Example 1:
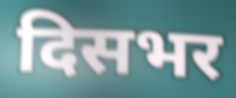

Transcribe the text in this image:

दिसभर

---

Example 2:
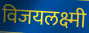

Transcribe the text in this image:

विजयलक्ष्मी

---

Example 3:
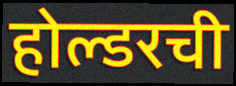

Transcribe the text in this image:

होल्डरची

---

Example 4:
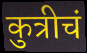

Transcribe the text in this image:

कुत्रीचं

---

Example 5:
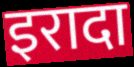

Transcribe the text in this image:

इरादा